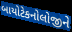
બાયોટેકનોલોજીને